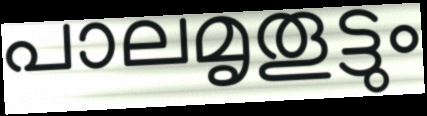
പാലമൃതൂട്ടും